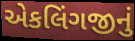
એકલિંગજીનું